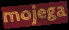
mojega